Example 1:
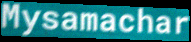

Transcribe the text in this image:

Mysamachar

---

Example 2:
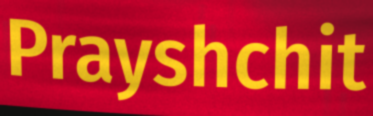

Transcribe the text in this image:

Prayshchit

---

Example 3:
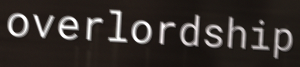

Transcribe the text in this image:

overlordship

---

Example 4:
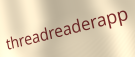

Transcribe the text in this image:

threadreaderapp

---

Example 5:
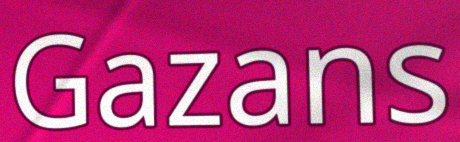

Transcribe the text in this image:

Gazans